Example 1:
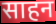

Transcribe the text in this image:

साहन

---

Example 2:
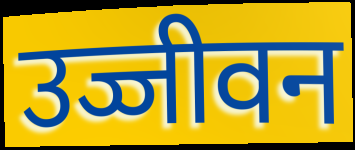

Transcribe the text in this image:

उज्जीवन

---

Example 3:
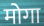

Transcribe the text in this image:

मोगा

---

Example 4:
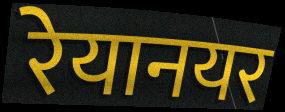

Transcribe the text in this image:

रेयानयर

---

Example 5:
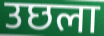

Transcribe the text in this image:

उछला